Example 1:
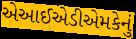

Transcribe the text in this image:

એઆઈએડીએમકેનું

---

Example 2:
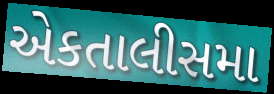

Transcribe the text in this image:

એકતાલીસમા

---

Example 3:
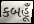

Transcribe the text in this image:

કબહૂઁ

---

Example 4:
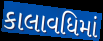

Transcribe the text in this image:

કાલાવધિમાં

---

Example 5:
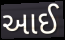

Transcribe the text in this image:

આઈ